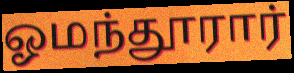
ஓமந்தூரார்